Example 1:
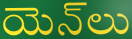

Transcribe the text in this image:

యెన్‌లు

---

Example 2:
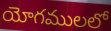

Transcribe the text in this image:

యోగములలో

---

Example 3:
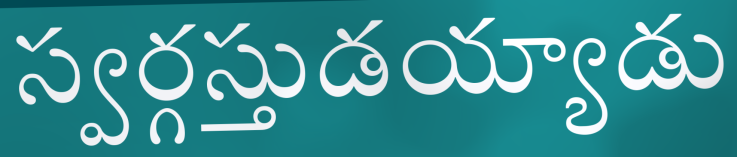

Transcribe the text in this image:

స్వర్గస్తుడయ్యాడు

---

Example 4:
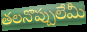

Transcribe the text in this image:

తలనొప్పులేమీ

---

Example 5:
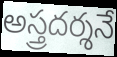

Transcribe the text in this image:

అస్త్రదర్శనే